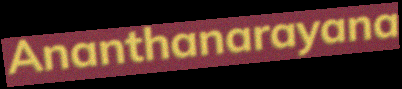
Ananthanarayana